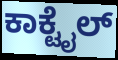
ಕಾಕ್ಟೈಲ್